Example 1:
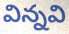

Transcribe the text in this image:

విన్నవి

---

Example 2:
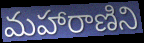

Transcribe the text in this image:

మహారాణిని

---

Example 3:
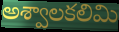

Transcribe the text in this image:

అశ్వాలకలిమి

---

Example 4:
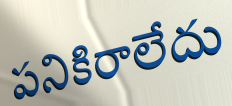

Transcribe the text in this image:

పనికిరాలేదు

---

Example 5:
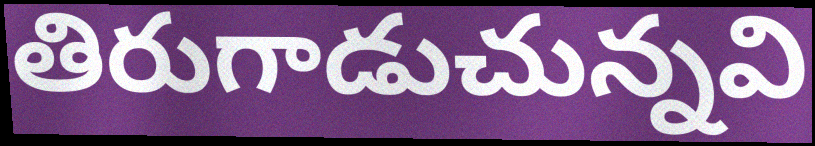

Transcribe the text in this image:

తిరుగాడుచున్నవి